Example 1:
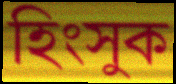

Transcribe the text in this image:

হিংসুক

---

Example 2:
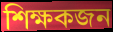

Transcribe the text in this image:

শিক্ষকজন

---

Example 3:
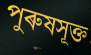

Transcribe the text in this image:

পুৰুষসূক্ত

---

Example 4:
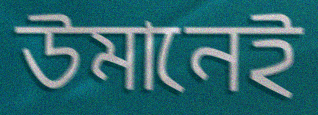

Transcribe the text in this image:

উমানেই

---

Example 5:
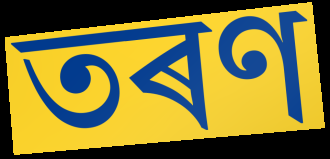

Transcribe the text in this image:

তৰণ